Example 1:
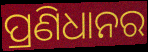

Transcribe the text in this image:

ପ୍ରଣିଧାନର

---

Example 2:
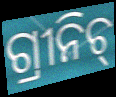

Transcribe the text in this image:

ଗ୍ରୀନିଚ୍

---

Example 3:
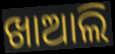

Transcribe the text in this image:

ଖାଆଲି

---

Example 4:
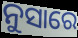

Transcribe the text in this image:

ନୁସାରେ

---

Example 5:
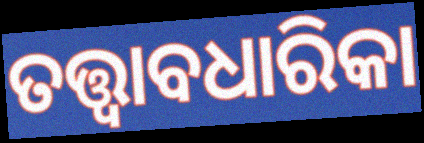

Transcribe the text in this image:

ତତ୍ତ୍ୱାବଧାରିକା